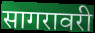
सागरावरी